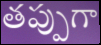
తప్పుగా